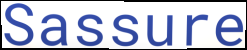
Sassure